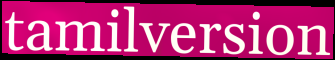
tamilversion